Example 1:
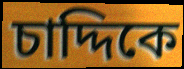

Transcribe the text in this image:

চাদ্দিকে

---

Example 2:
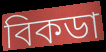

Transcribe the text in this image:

বিকডা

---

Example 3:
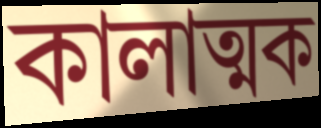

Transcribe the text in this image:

কালাত্মক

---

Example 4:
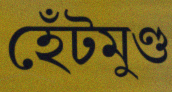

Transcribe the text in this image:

হেঁটমুণ্ড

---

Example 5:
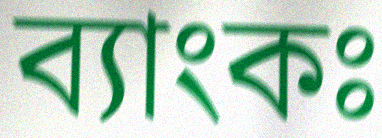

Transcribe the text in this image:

ব্যাংকঃ